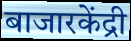
बाजारकेंद्री